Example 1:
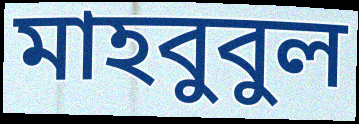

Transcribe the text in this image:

মাহবুবুল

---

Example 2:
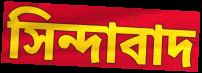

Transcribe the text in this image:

সিন্দাবাদ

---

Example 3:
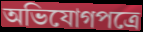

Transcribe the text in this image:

অভিযোগপত্রে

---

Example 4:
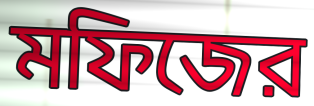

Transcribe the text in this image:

মফিজের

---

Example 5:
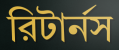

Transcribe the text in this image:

রিটার্নস